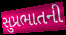
સુપ્રભાતની